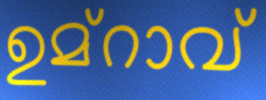
ഉമ്റാവ്